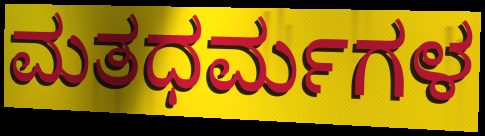
ಮತಧರ್ಮಗಳ